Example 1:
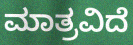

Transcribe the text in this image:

ಮಾತ್ರವಿದೆ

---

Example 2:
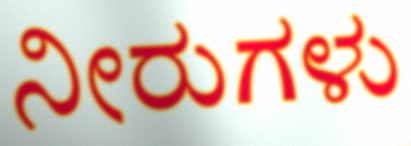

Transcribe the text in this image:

ನೀರುಗಳು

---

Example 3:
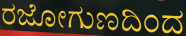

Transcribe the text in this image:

ರಜೋಗುಣದಿಂದ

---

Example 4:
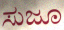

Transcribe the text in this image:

ಸುಜೂ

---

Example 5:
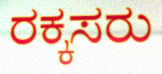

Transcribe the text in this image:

ರಕ್ಕಸರು